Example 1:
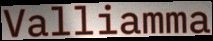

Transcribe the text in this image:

Valliamma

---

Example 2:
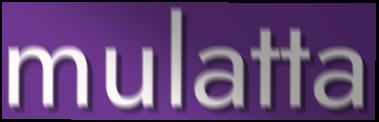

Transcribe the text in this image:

mulatta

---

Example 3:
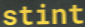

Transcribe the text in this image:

stint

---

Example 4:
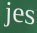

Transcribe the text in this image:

jes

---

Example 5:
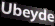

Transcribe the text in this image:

Ubeyde